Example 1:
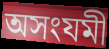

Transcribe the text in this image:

অসংযমী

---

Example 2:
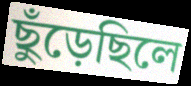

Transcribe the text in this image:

ছুঁড়েছিলে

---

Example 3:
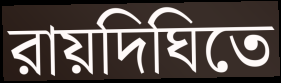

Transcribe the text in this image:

রায়দিঘিতে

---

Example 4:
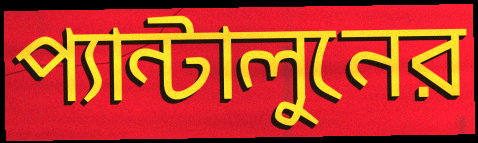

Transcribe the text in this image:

প্যান্টালুনের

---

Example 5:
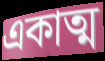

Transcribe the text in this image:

একাত্ম